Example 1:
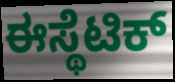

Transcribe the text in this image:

ಈಸ್ಥೆಟಿಕ್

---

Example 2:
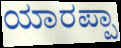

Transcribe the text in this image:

ಯಾರಪ್ಪಾ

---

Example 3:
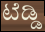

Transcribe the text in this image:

ಟೆಡ್ಡಿ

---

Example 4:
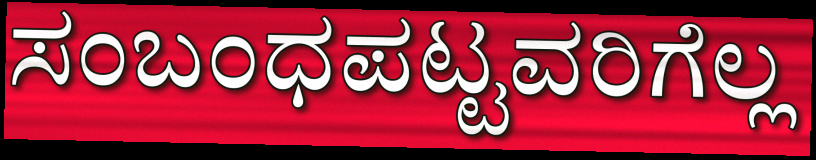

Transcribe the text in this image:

ಸಂಬಂಧಪಟ್ಟವರಿಗೆಲ್ಲ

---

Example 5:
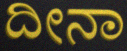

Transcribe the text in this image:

ದೀನಾ